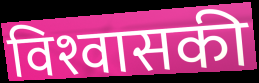
विश्वासकी